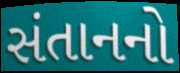
સંતાનનો